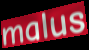
malus